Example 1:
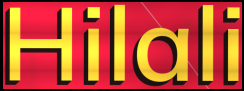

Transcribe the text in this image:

Hilali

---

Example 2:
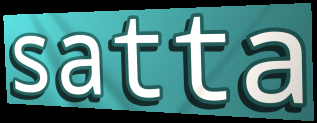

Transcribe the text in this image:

satta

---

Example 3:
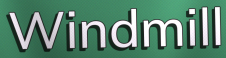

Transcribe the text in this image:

Windmill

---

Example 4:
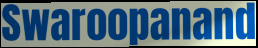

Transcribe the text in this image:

Swaroopanand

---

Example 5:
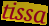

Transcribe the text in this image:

tissa